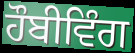
ਹੌਬੀਵਿੰਗ